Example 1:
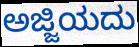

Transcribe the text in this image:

ಅಜ್ಜಿಯದು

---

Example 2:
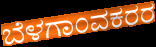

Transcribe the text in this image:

ಬೆಳಗಾಂವಕರರ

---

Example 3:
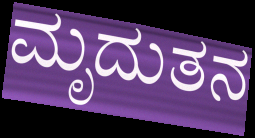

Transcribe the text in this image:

ಮೃದುತನ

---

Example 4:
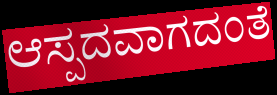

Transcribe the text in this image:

ಆಸ್ಪದವಾಗದಂತೆ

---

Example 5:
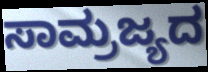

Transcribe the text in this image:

ಸಾಮ್ರಜ್ಯದ